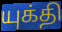
யுக்தி